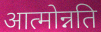
आत्मोन्नति